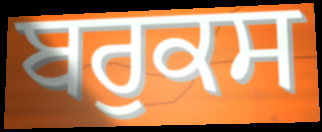
ਬਰੁਕਸ